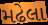
મઢેલા